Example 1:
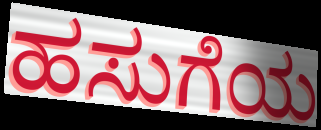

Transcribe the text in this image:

ಹಸುಗೆಯ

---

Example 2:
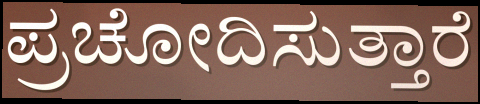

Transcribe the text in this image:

ಪ್ರಚೋದಿಸುತ್ತಾರೆ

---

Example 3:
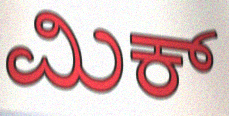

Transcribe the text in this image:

ಮಿಕ್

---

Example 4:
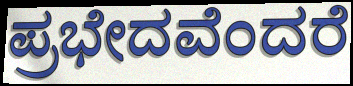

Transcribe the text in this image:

ಪ್ರಭೇದವೆಂದರೆ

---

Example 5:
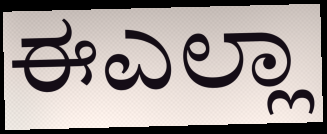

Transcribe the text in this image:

ಈಎಲ್ಲಾ